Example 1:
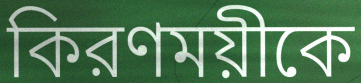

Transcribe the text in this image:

কিরণময়ীকে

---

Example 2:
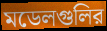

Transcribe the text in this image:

মডেলগুলির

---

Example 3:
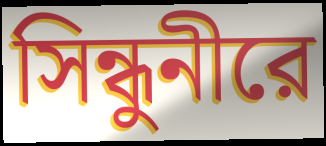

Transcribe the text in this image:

সিন্ধুনীরে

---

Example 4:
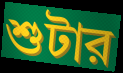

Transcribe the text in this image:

শুটার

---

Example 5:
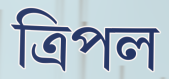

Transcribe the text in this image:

ত্রিপল